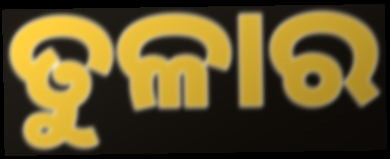
ତୁଳାର